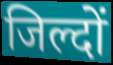
जिल्दों